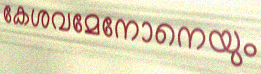
കേശവമേനോനെയും